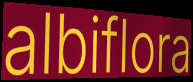
albiflora